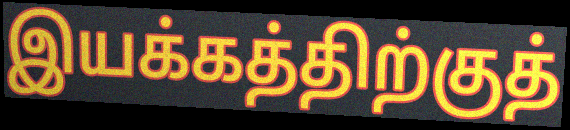
இயக்கத்திற்குத்